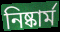
নিষ্কার্ম